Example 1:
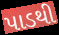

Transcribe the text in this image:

પાડથી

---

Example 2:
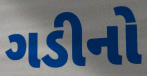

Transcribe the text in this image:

ગડીનો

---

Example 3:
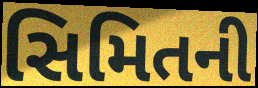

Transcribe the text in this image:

સિમિતની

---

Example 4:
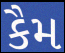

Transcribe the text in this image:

કૈમ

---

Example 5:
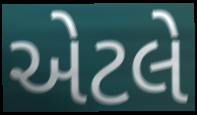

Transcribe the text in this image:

એટલે